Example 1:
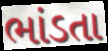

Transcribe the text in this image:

ભાંડતા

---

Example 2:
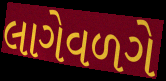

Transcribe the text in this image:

લાગેવળગે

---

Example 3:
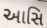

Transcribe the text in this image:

આસિ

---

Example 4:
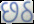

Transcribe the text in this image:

છઠ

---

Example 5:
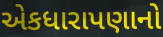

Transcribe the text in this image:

એકધારાપણાનો